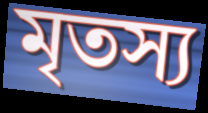
মৃতস্য